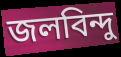
জলবিন্দু